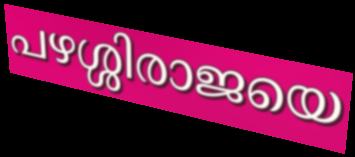
പഴശ്ശിരാജയെ